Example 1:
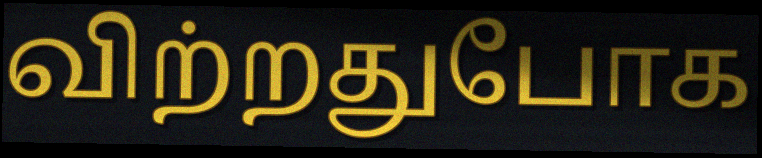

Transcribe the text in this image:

விற்றதுபோக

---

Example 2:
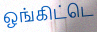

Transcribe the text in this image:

ஒங்கிட்டெ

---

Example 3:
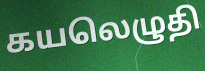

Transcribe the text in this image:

கயலெழுதி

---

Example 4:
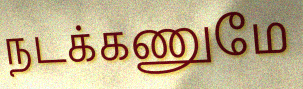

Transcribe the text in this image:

நடக்கணுமே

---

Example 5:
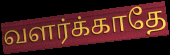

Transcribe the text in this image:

வளர்க்காதே